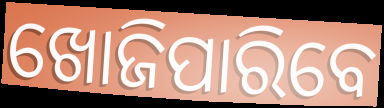
ଖୋଜିପାରିବେ